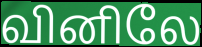
வினிலே